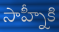
సాహ్నీకి